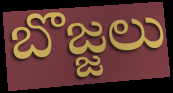
బొజ్జలు